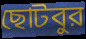
ছোটবুর